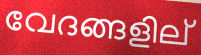
വേദങ്ങളില്